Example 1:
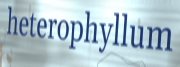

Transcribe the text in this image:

heterophyllum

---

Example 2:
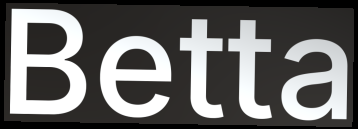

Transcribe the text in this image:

Betta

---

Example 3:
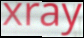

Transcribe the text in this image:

xray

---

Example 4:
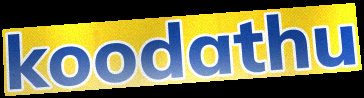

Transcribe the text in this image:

koodathu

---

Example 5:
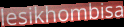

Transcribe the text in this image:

lesikhombisa